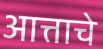
आत्ताचे